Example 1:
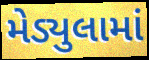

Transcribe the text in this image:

મેડ્યુલામાં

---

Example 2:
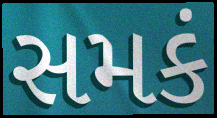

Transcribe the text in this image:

સમકં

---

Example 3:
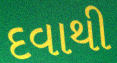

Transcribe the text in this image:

દવાથી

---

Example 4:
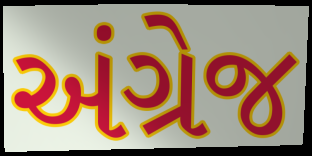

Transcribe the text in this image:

અંગ્રેજ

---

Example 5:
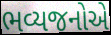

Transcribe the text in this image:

ભવ્યજનોએ